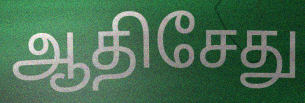
ஆதிசேது